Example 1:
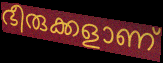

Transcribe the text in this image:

ഭീരുക്കളാണ്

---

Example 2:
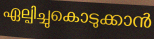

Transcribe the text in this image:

ഏല്പിച്ചുകൊടുക്കാൻ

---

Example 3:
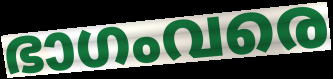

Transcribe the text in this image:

ഭാഗംവരെ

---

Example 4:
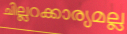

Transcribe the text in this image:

ചില്ലറക്കാര്യമല്ല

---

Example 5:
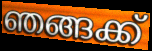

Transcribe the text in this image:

ഞങ്ങക്ക്